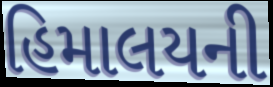
હિમાલયની